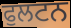
ਫੁਲਟਨ